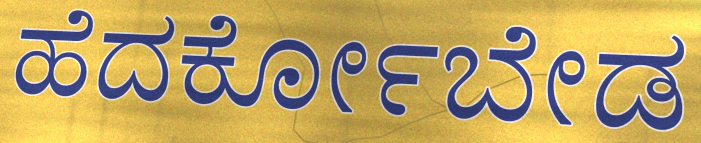
ಹೆದರ್ಕೋಬೇಡ